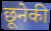
छूनेकी